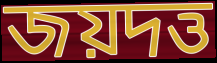
জয়দত্ত